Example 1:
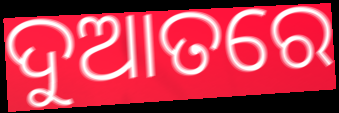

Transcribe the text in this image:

ଦୁଆତରେ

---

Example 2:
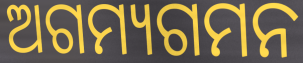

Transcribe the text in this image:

ଅଗମ୍ୟଗମନ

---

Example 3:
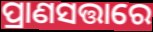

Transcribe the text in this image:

ପ୍ରାଣସତ୍ତାରେ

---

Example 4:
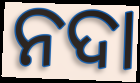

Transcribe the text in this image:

ନଦା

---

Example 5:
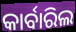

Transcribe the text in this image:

କାର୍ବାରିଲ